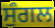
ਸੁੰਗਲ